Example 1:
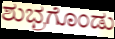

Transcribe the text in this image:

ಶುಭ್ರಗೊಂಡು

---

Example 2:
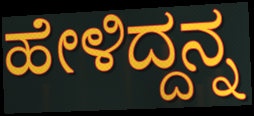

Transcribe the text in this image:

ಹೇಳಿದ್ದನ್ನ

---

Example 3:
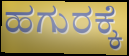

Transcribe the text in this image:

ಹಗುರಕ್ಕೆ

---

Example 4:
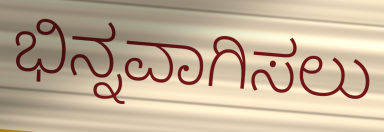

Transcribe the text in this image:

ಭಿನ್ನವಾಗಿಸಲು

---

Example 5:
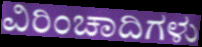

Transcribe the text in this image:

ವಿರಿಂಚಾದಿಗಳು